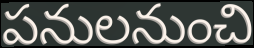
పనులనుంచి